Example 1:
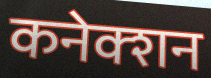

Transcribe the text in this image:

कनेक्शन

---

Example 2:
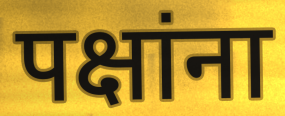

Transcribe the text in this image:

पक्षांना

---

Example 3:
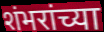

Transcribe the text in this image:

शंभरांच्या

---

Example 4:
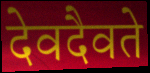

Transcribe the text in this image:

देवदैवते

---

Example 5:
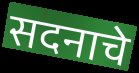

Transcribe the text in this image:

सदनाचे